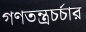
গণতন্ত্রচর্চার